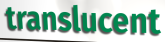
translucent